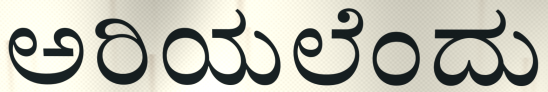
ಅರಿಯಲೆಂದು